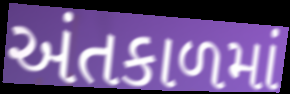
અંતકાળમાં